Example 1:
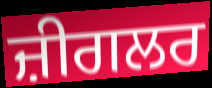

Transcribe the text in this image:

ਜ਼ੀਗਲਰ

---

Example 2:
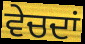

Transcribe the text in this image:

ਵੇਚਦਾਂ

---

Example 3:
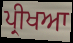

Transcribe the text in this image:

ਪ੍ਰੀਖਆ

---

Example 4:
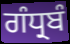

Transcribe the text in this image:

ਗੰਧ੍ਰਬੰ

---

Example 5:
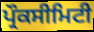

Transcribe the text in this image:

ਪ੍ਰੌਕਸੀਮਿਟੀ